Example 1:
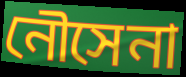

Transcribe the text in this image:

নৌসেনা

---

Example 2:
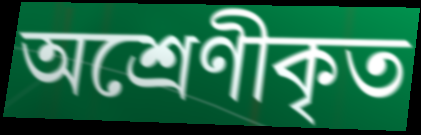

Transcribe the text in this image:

অশ্ৰেণীকৃত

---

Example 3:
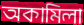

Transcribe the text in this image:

অকামিলা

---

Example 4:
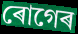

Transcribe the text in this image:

ৰোগেৰ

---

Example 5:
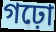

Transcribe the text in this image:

গঢ়ো